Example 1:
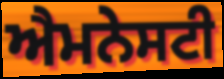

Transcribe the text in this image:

ਐਮਨੇਸਟੀ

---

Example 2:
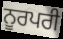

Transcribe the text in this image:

ਨੂਰਪਰੀ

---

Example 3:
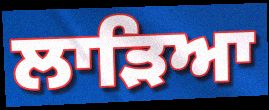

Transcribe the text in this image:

ਲਾੜਿਆ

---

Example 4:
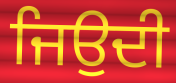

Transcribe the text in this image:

ਜਿਉਦੀ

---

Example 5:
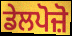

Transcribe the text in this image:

ਡੇਲਪੋਜ਼ੋ